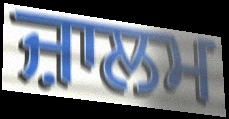
ਜ਼ਾਲਮ